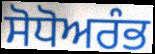
ਸੋਧੋਅਰੰਭ